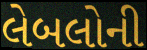
લેબલોની